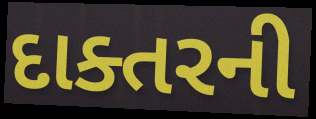
દાક્તરની